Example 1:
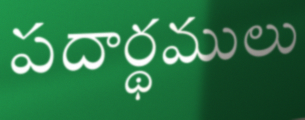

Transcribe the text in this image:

పదార్థములు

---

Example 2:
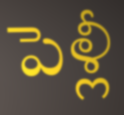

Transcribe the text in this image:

పెళ్లీ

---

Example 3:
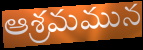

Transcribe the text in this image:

ఆశ్రమమున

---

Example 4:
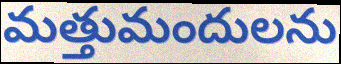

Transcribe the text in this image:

మత్తుమందులను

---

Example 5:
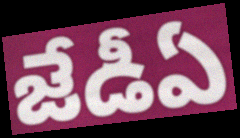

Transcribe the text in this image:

జేడీఏ